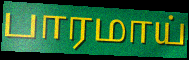
பாரமாய்